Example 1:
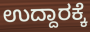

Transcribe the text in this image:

ಉದ್ದಾರಕ್ಕೆ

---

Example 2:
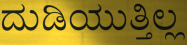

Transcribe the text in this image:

ದುಡಿಯುತ್ತಿಲ್ಲ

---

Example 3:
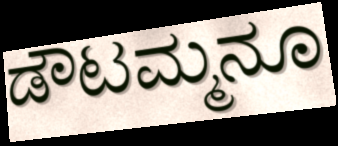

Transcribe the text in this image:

ಡೌಟಮ್ಮನೂ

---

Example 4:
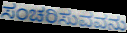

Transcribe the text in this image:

ಸಂಚರಿಸುವವನು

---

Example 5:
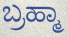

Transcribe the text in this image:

ಬ್ರಹ್ಮಾ